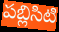
పబ్లిసిటి